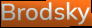
Brodsky